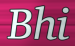
Bhi